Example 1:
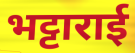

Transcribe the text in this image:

भट्टाराई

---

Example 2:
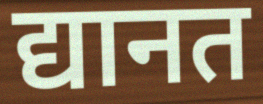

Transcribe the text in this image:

द्यानत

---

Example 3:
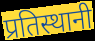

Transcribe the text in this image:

प्रतिस्थानी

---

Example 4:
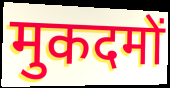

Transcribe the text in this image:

मुकदमों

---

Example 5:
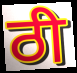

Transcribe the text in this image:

ठी